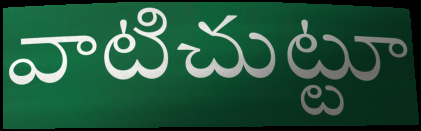
వాటిచుట్టూ